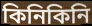
কিনিকিনি